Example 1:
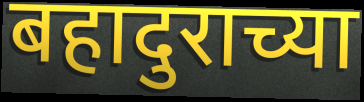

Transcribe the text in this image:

बहादुराच्या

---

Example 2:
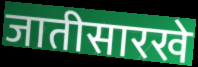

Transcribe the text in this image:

जातीसारखे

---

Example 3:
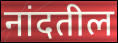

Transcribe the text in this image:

नांदतील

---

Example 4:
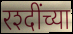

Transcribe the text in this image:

रश्दींच्या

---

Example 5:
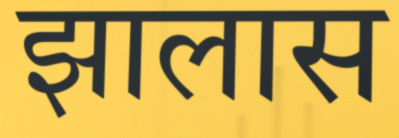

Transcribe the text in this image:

झालास